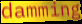
damming